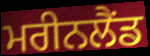
ਮਰੀਨਲੈਂਡ